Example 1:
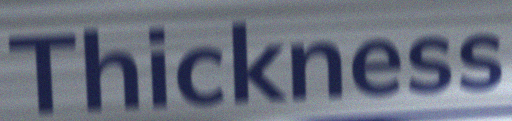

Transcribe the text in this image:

Thickness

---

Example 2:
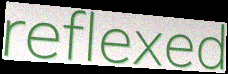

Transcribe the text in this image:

reflexed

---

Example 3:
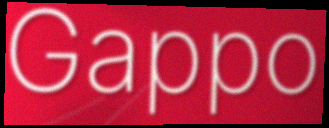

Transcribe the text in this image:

Gappo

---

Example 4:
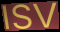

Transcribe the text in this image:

ISV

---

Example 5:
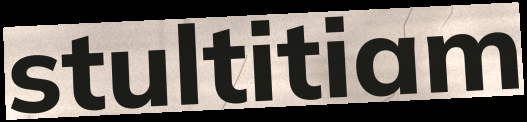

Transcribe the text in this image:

stultitiam